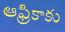
ఆఫ్రికాకు